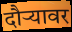
दौऱ्यावर